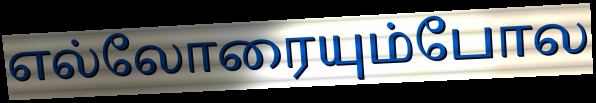
எல்லோரையும்போல